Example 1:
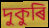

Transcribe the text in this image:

দুকুৰি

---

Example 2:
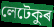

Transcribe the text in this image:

লেটেকুৰ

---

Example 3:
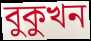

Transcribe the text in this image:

বুকুখন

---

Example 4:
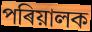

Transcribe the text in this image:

পৰিয়ালক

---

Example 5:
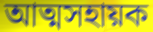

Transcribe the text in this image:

আত্মসহায়ক